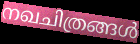
നഖചിത്രങ്ങൾ